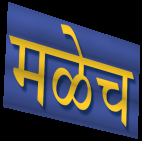
मळेच